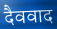
दैववाद